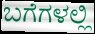
ಬಗೆಗಳಲ್ಲಿ